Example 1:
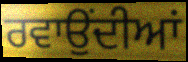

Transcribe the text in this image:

ਰਵਾਉਂਦੀਆਂ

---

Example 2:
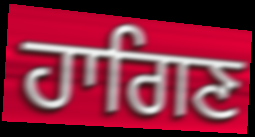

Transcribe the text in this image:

ਹਾਗਿਣ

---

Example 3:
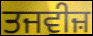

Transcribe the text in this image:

ਤਜਵੀਜ਼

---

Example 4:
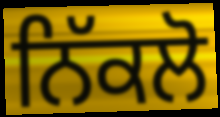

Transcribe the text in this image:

ਨਿੱਕਲੋ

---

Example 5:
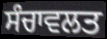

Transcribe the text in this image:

ਸੰਚਾਵਲਤ